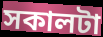
সকালটা